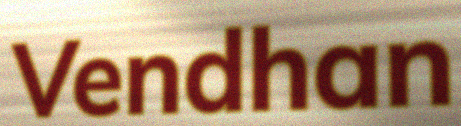
Vendhan